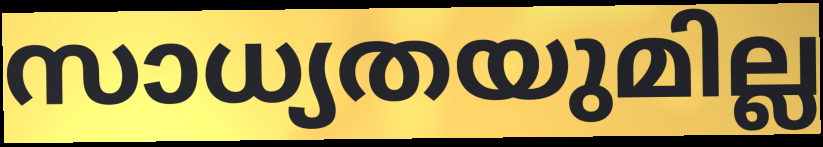
സാധ്യതയുമില്ല